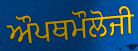
ਔਪਥਮੌਲੋਜੀ